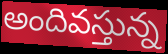
అందివస్తున్న